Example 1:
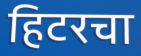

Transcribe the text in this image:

हिटरचा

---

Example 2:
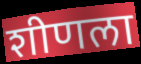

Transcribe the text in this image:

शीणला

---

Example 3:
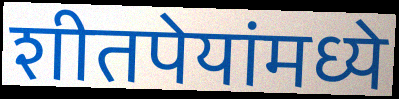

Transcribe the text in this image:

शीतपेयांमध्ये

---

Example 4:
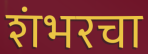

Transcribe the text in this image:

शंभरचा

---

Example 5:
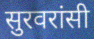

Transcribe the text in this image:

सुरवरांसी